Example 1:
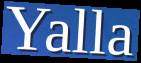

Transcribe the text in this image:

Yalla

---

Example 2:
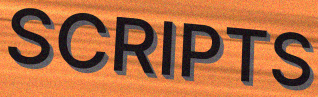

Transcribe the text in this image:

SCRIPTS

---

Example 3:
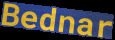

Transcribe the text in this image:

Bednar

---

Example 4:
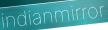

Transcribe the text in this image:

indianmirror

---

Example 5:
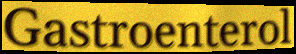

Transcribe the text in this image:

Gastroenterol